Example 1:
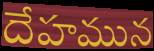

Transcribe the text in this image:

దేహమున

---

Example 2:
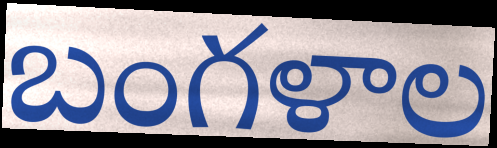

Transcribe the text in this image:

బంగళాల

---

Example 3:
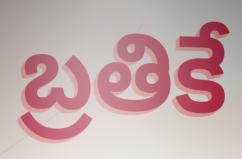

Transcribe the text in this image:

బ్రతికే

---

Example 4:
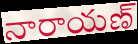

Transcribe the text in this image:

నారాయణ్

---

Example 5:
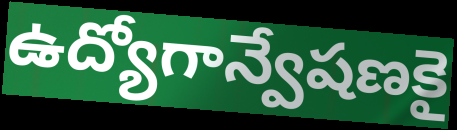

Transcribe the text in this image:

ఉద్యోగాన్వేషణకై